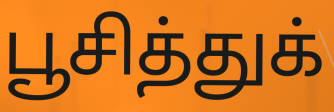
பூசித்துக்